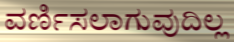
ವರ್ಣಿಸಲಾಗುವುದಿಲ್ಲ